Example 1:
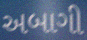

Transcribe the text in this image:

અબાગી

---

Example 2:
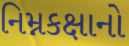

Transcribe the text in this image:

નિમ્નકક્ષાનો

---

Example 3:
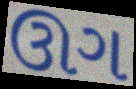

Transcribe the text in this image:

ઊગ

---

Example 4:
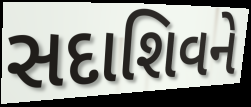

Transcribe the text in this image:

સદાશિવને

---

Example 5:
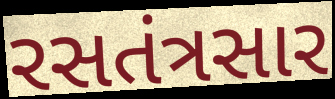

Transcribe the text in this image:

રસતંત્રસાર